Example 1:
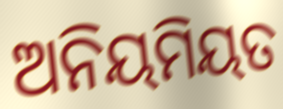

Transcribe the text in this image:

ଅନିୟମିୟତ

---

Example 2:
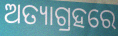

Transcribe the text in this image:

ଅତ୍ୟାଗ୍ରହରେ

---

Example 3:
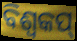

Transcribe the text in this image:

ବିଶ୍ବକପ୍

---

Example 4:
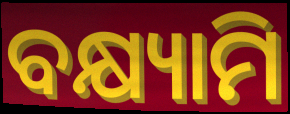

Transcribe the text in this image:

ବକ୍ଷ୍ୟାମି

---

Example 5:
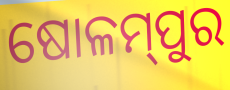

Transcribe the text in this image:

ଷୋଳମ୍‌ପୁର